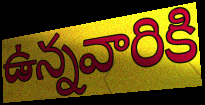
ఉన్నవారికి